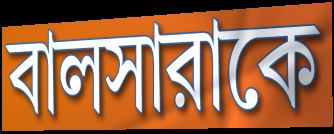
বালসারাকে